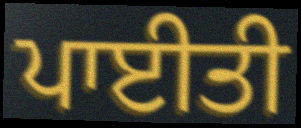
ਪਾਈਤੀ